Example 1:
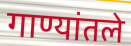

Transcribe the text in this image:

गाण्यांतले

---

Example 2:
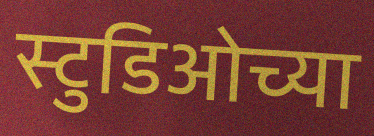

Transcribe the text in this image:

स्टुडिओच्या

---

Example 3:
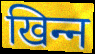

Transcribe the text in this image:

खिन्‍न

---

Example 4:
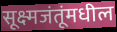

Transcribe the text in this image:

सूक्ष्मजंतूंमधील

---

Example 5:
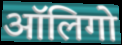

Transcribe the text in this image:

ऑलिगो